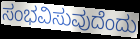
ಸಂಭವಿಸುವುದೆಂದು